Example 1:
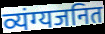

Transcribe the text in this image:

व्यंग्यजनित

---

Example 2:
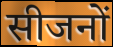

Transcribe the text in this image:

सीजनों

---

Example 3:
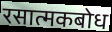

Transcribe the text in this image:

रसात्मकबोध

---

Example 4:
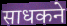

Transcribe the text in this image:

साधकने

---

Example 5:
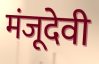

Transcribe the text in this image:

मंजूदेवी